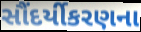
સૌંદર્યીકરણના